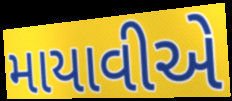
માયાવીએ